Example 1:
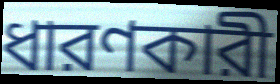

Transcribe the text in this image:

ধারণকারী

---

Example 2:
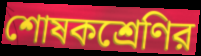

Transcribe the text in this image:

শোষকশ্রেণির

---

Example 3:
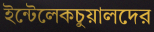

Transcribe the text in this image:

ইন্টেলেকচুয়ালদের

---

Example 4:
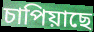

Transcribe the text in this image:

চাপিয়াছে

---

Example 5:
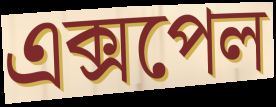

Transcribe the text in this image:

এক্সপেল